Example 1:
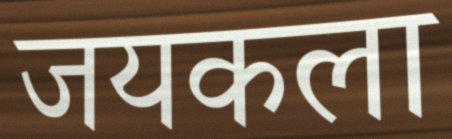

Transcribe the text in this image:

जयकला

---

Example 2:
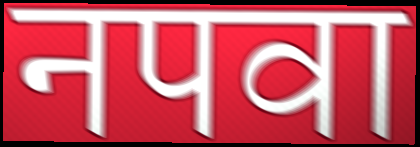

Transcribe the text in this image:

नपवा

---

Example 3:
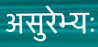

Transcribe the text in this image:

असुरेभ्यः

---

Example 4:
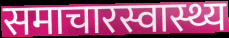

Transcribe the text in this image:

समाचारस्वास्थ्य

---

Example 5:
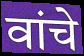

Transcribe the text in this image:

वांचे